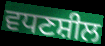
ਵਧਣਸ਼ੀਲ